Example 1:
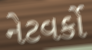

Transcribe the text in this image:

નેટવર્કો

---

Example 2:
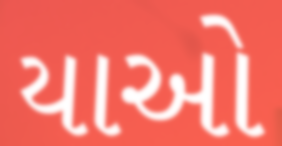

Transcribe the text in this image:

યાઓ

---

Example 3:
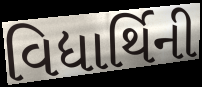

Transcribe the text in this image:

વિદ્યાર્થિની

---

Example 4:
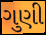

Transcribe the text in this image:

ગુણી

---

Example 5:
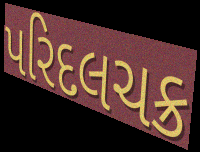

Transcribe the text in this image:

પરિદલચક્ર